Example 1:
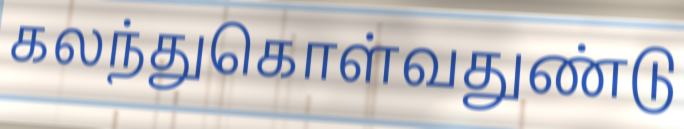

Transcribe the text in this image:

கலந்துகொள்வதுண்டு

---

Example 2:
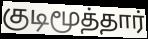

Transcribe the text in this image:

குடிமூத்தார்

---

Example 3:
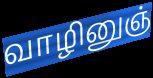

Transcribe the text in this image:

வாழினுஞ்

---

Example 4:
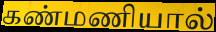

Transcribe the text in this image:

கண்மணியால்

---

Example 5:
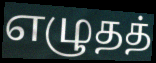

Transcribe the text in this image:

எழுதத்